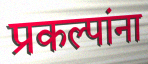
प्रकल्पांना